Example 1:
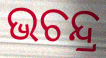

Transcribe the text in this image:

ଭଚନ୍ଦ୍ର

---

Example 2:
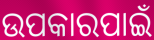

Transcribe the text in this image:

ଉପକାରପାଇଁ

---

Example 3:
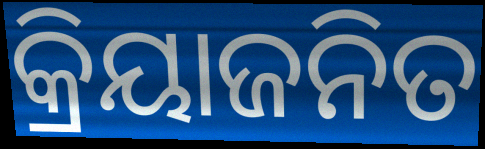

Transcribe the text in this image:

କ୍ରିୟାଜନିତ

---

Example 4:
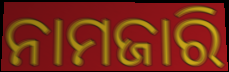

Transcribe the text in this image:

ନାମଜାରି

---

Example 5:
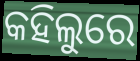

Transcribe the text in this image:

କହିଲୁରେ